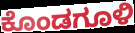
ಕೊಂಡಗೂಳಿ